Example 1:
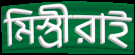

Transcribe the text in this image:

মিস্ত্রীরাই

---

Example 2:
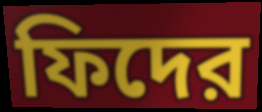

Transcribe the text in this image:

ফিদের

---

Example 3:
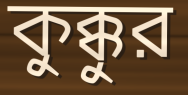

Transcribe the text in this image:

কুক্কুর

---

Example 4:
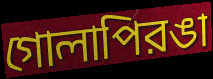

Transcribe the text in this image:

গোলাপিরঙা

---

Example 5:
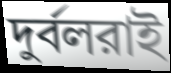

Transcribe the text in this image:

দুর্বলরাই